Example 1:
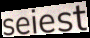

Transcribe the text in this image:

seiest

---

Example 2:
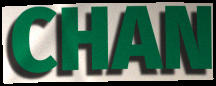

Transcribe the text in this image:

CHAN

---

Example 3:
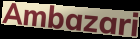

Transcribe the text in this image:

Ambazari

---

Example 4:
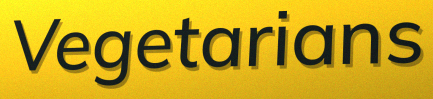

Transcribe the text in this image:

Vegetarians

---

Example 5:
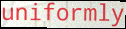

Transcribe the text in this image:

uniformly